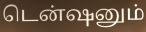
டென்ஷனும்